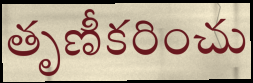
తృణీకరించు